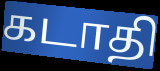
கடாதி